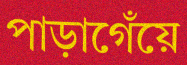
পাড়াগেঁয়ে